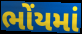
ભોંયમાં